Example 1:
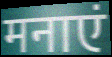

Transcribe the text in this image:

मनाएं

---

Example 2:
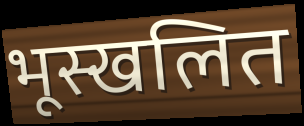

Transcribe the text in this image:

भूस्खलित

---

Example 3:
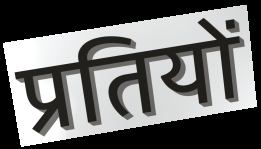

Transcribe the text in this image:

प्रतियों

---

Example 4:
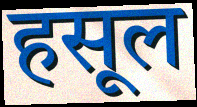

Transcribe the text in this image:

हसूल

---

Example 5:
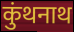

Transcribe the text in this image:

कुंथनाथ